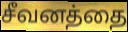
சீவனத்தை